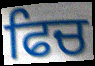
ਫਿਚ